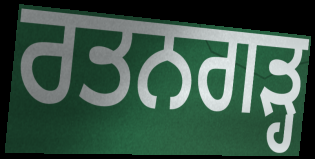
ਰਤਨਗੜ੍ਹ